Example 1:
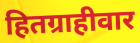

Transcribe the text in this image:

हितग्राहीवार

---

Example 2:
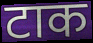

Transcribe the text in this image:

टाक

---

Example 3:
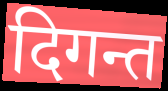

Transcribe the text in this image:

दिगन्त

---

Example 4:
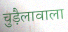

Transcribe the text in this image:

चुड़ैलावाला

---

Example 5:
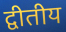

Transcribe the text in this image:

द्वीतीय